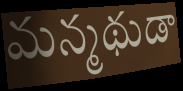
మన్మథుడా